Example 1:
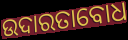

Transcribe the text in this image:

ଉଦାରତାବୋଧ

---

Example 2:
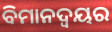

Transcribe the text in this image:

ବିମାନଦ୍ବୟର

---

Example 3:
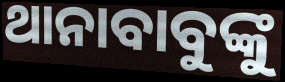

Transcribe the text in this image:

ଥାନାବାବୁଙ୍କୁ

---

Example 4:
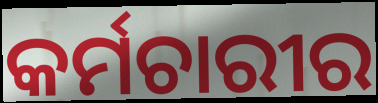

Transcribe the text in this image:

କର୍ମଚାରୀର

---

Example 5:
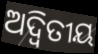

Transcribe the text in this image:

ଅଦ୍ଵିତୀୟ